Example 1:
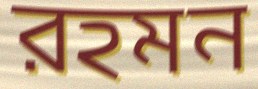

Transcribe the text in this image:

রহমন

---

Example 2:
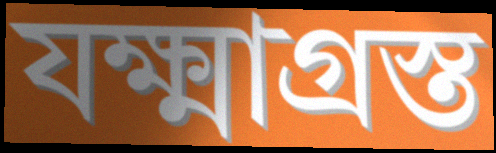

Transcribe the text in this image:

যক্ষ্মাগ্রস্ত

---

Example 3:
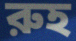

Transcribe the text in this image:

রুহ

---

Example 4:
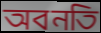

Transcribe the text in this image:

অবনতি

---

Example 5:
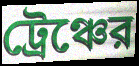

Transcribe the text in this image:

ট্রেঞ্চের